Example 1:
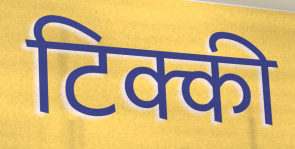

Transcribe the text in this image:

टिक्की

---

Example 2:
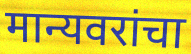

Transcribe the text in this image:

मान्यवरांचा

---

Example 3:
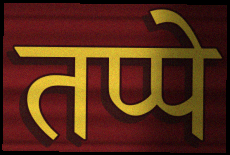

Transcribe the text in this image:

तप्पे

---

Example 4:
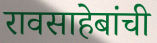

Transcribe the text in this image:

रावसाहेबांची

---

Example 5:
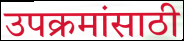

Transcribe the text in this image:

उपक्रमांसाठी